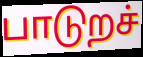
பாடுறச்